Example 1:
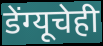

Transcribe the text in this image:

डेंग्यूचेही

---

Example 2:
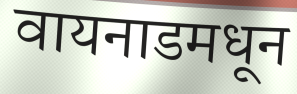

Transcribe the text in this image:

वायनाडमधून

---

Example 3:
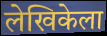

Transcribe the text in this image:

लेखिकेला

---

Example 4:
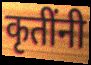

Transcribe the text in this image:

कृतींनी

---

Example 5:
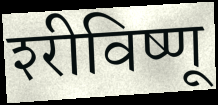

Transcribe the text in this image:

श्रीविष्णू